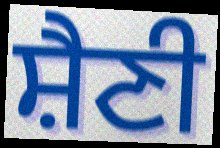
ਸ਼ੈਣੀ